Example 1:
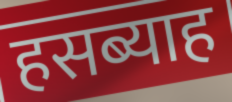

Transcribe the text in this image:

हसब्याह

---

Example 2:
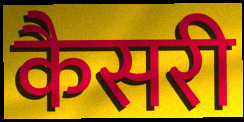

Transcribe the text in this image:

कैसरी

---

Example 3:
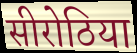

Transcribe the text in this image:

सीरोठिया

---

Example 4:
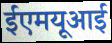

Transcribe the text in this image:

ईएमयूआई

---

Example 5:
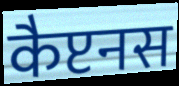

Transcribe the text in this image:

कैप्टनस